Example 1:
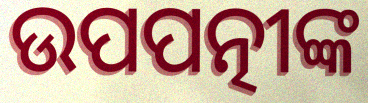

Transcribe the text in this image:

ଉପପତ୍ନୀଙ୍କ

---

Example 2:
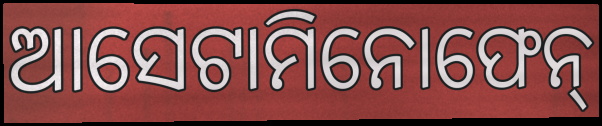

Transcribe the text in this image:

ଆସେଟାମିନୋଫେନ୍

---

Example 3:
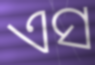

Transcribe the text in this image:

ଏସ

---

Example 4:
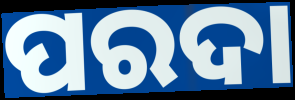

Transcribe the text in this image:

ପରଦା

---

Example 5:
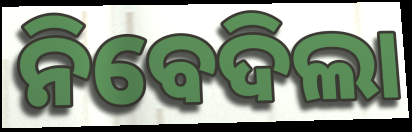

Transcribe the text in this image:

ନିବେଦିଲା